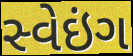
સ્વેઇંગ